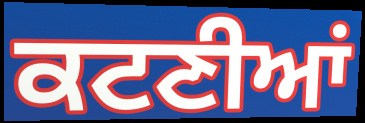
ਕਟਣੀਆਂ